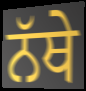
ਨੱਥੇ